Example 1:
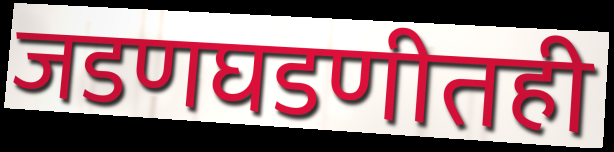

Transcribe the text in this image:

जडणघडणीतही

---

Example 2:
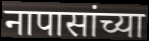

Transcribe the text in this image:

नापासांच्या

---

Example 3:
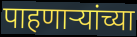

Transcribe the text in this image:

पाहणार्‍यांच्या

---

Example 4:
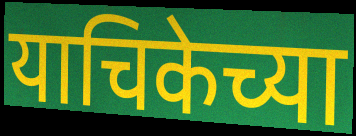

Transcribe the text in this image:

याचिकेच्या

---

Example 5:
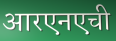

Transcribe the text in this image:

आरएनएची